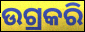
ଉଗ୍ରକରି